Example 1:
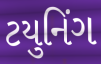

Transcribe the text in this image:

ટયુનિંગ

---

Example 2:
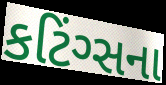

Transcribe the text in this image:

કટિંગ્સના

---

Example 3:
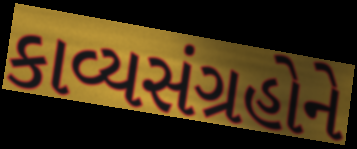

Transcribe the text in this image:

કાવ્યસંગ્રહોને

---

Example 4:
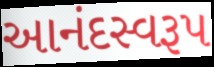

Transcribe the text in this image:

આનંદસ્વરૂપ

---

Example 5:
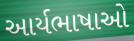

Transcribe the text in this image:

આર્યભાષાઓ